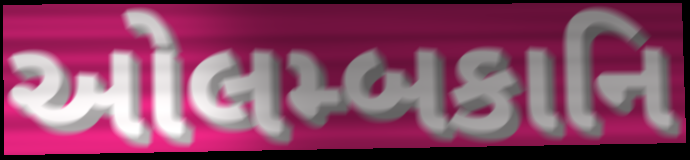
ઓલમ્બકાનિ